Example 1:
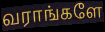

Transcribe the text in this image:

வராங்களே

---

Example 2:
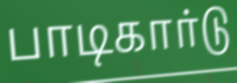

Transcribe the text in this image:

பாடிகார்டு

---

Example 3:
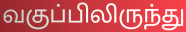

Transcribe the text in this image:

வகுப்பிலிருந்து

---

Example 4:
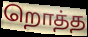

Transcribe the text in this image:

றொத்த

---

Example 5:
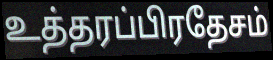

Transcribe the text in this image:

உத்தரப்பிரதேசம்